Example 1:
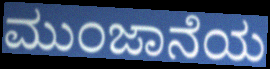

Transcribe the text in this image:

ಮುಂಜಾನೆಯ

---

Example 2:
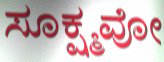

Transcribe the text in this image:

ಸೂಕ್ಷ್ಮವೋ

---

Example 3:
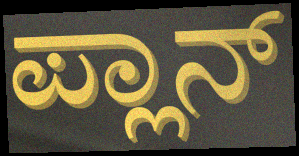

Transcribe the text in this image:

ಪ್ಲಾನ್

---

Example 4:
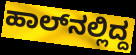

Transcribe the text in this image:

ಹಾಲ್‌ನಲ್ಲಿದ್ದ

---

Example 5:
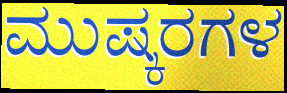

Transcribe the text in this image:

ಮುಷ್ಕರಗಳ